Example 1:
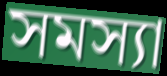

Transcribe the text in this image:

সমস্যা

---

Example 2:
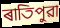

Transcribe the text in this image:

ৰাতিপুৱা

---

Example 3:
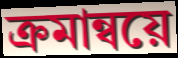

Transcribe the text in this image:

ক্ৰমান্বয়ে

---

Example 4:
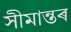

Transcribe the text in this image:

সীমান্তৰ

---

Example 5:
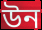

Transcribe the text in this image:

উন